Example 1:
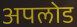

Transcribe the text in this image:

अपलोड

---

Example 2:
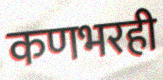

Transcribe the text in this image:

कणभरही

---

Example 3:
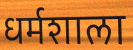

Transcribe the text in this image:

धर्मशाला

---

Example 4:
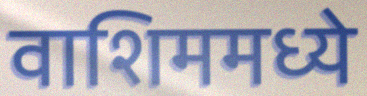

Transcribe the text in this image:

वाशिममध्ये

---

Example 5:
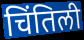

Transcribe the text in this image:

चिंतिली